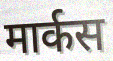
मार्कस